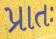
પ્રાતઃ